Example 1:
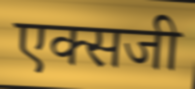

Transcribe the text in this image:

एक्सजी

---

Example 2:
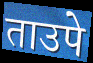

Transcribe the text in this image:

ताउपे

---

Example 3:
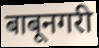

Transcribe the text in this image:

बाबूनगरी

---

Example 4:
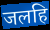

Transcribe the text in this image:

जलहि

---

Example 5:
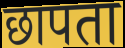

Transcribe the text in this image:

छापता